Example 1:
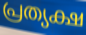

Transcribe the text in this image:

പ്രത്യക്ഷ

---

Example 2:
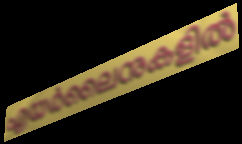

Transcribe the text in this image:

എയർലൈനുകളിൽ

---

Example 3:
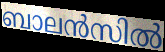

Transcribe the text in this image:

ബാലൻസിൽ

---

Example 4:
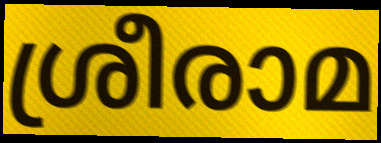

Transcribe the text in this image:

ശ്രീരാമ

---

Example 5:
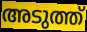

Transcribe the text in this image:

അടുത്ത്